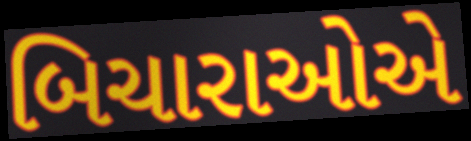
બિચારાઓએ